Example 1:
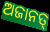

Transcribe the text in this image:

ଅଜାନତ୍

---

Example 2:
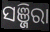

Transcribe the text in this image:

ସଞ୍ଜିରା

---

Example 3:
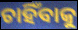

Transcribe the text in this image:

ଚାହିଁବାକୁ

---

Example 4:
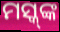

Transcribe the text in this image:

ମସ୍କ୍‌ଙ୍କ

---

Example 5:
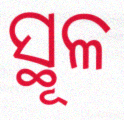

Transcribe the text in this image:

ସ୍ଥୂଳ